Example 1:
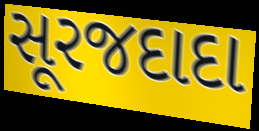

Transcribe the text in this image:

સૂરજદાદા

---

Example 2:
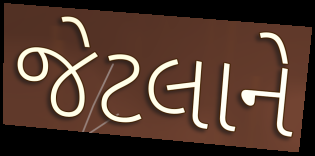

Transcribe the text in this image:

જેટલાને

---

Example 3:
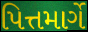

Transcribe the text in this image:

પિત્તમાર્ગે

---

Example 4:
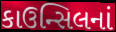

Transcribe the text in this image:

કાઉન્સિલનાં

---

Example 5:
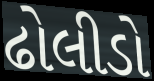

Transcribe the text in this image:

ઢોલીડો